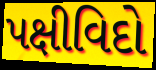
પક્ષીવિદો